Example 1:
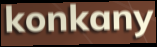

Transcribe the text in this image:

konkany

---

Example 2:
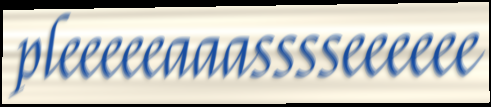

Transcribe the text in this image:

pleeeeeaaasssseeeeee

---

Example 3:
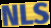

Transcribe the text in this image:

NLS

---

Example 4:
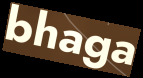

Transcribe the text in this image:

bhaga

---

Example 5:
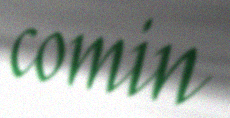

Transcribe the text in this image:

comin